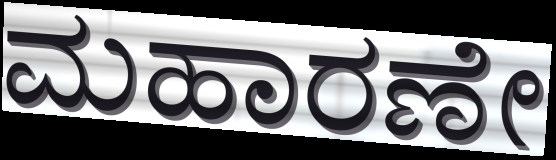
ಮಹಾರಣೇ